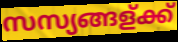
സസ്യങ്ങള്ക്ക്